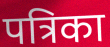
पत्रिका